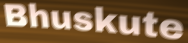
Bhuskute